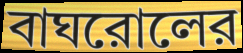
বাঘরোলের